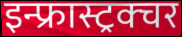
इन्फ्रास्ट्रक्‍चर